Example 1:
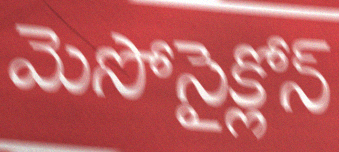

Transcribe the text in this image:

మెసోసైక్లోన్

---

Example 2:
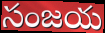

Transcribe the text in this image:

సంజయ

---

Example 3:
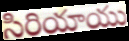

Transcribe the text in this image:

సిరియాయు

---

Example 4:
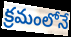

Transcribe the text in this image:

క్రమంలోనే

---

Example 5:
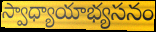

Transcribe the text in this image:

స్వాధ్యాయాభ్యసనం